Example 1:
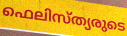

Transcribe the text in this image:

ഫെലിസ്ത്യരുടെ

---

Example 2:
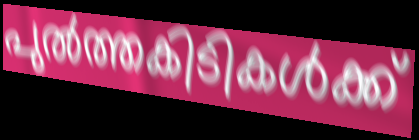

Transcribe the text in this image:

പുൽത്തകിടികൾക്ക്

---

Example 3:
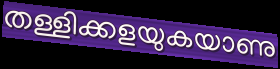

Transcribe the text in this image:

തള്ളിക്കളയുകയാണു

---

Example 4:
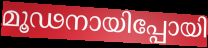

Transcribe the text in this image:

മൂഢനായിപ്പോയി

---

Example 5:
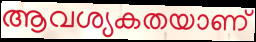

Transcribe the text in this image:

ആവശ്യകതയാണ്